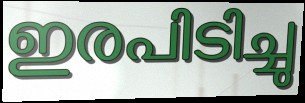
ഇരപിടിച്ചു